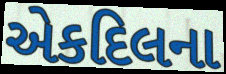
એકદિલના